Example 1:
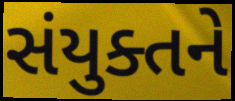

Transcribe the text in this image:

સંયુક્તને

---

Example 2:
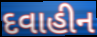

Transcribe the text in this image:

દવાહીન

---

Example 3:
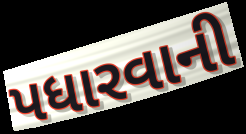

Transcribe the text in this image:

પધારવાની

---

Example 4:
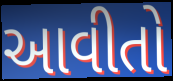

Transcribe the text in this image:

આવીતો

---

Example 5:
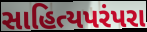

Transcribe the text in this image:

સાહિત્યપરંપરા